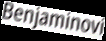
Benjaminovi